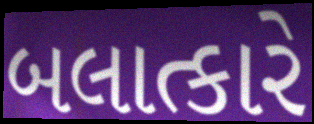
બલાત્કારે